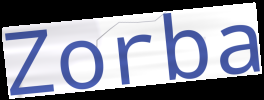
Zorba